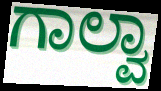
ಗಾಲ್ವಾ